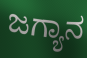
ಜಗ್ಯಾನ